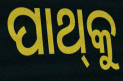
ପାଥ୍‌କୁ